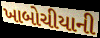
ખાબોચીયાની